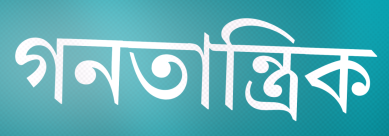
গনতান্ত্ৰিক